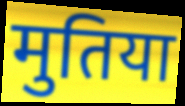
मुतिया